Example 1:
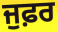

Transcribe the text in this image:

ਜੁਫ਼ਰ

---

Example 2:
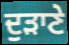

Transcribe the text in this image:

ਦੁੜਾਣੇ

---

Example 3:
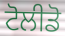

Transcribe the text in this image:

ਟੋਲੀਡੋ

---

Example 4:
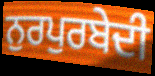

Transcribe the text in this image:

ਨੁਰਪੁਰਬੇਦੀ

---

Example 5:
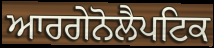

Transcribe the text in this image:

ਆਰਗੇਨੋਲੈਪਟਿਕ